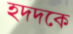
হদদকে